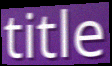
title